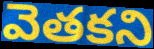
వెతకని